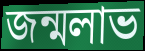
জন্মলাভ